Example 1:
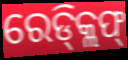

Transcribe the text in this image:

ରେଡ୍କ୍ଲିଫ୍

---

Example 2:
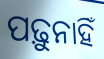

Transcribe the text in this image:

ପଢ଼ୁନାହିଁ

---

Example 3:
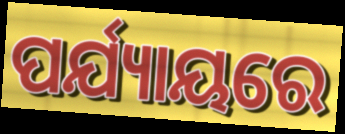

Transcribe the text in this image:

ପର୍ଯ୍ୟାୟରେ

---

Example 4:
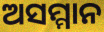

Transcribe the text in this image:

ଅସମ୍ମାନ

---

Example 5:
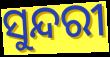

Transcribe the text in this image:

ସୁନ୍ଦରୀ